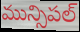
మున్సిపల్